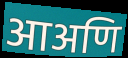
आअणि